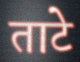
ताटे